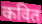
कवित